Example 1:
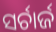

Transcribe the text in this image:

ସର୍ଚାର୍ଜ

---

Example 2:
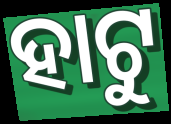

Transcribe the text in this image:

ହାଟୁ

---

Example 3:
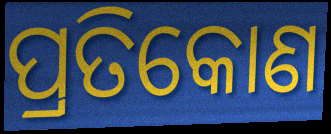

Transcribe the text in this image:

ପ୍ରତିକୋଣ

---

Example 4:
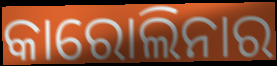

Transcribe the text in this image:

କାରୋଲିନାର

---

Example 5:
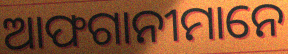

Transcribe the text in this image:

ଆଫଗାନୀମାନେ